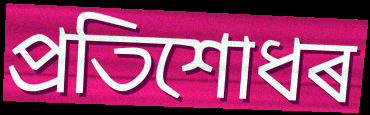
প্ৰতিশোধৰ